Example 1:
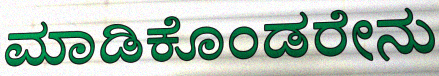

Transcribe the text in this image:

ಮಾಡಿಕೊಂಡರೇನು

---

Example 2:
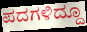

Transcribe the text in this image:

ಪದಗಳಿದ್ದೂ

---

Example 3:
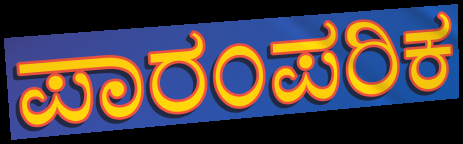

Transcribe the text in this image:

ಪಾರಂಪರಿಕ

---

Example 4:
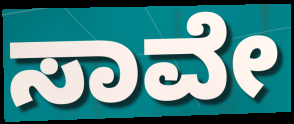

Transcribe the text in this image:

ಸಾವೇ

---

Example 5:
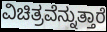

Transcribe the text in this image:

ವಿಚಿತ್ರವೆನ್ನುತ್ತಾರೆ